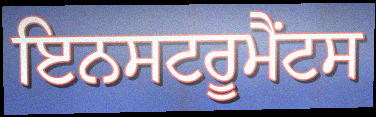
ਇਨਸਟਰੂਮੈਂਟਸ